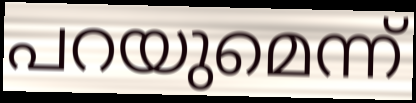
പറയുമെന്ന്